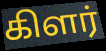
கிளர்